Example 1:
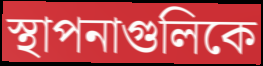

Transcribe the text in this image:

স্থাপনাগুলিকে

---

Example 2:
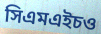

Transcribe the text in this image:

সিএমএইচও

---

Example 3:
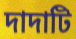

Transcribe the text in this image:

দাদাটি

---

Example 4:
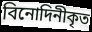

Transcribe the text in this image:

বিনোদিনীকৃত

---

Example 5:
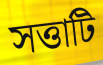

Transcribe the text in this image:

সত্তাটি